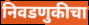
निवडणुकीचा